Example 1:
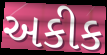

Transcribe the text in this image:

અકીક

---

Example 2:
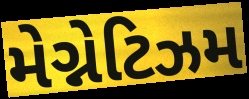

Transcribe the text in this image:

મેગ્નેટિઝમ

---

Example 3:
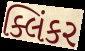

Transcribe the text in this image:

ક્લિંકર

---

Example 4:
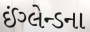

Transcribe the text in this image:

ઈંગ્લેન્ડના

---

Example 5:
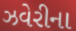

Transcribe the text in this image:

ઝવેરીના